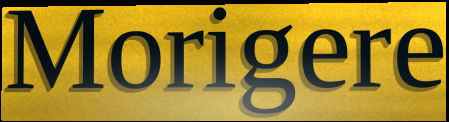
Morigere